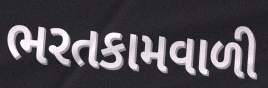
ભરતકામવાળી